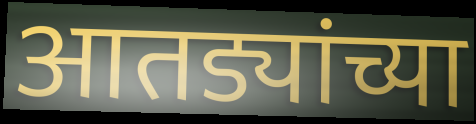
आतड्यांच्या